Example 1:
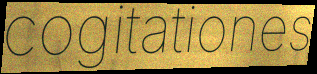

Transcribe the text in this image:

cogitationes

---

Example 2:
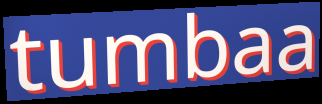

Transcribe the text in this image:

tumbaa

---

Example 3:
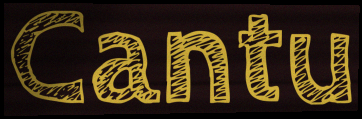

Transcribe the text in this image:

Cantu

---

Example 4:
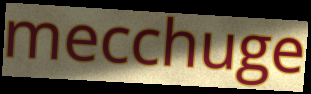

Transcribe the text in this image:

mecchuge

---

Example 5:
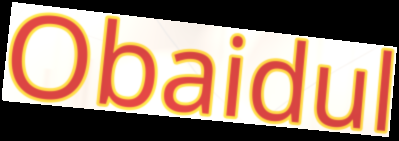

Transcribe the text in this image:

Obaidul